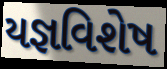
યજ્ઞવિશેષ